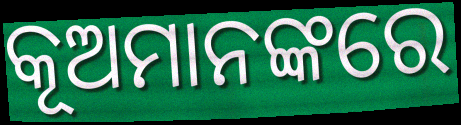
କୂଅମାନଙ୍କରେ